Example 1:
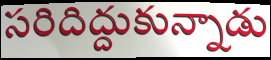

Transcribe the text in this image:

సరిదిద్దుకున్నాడు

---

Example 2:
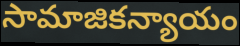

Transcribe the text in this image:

సామాజికన్యాయం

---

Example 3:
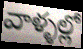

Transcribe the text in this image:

వాళ్ళల్లో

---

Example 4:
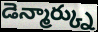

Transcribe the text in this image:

డెన్మార్క్ను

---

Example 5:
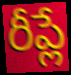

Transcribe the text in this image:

రీప్లే